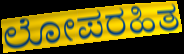
ಲೋಪರಹಿತ